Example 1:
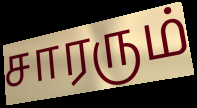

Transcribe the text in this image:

சாரரும்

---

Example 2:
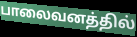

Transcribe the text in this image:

பாலைவனத்தில்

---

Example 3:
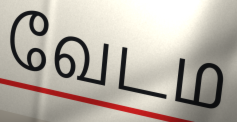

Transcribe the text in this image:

வேடம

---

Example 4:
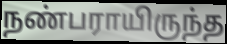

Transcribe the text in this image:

நண்பராயிருந்த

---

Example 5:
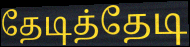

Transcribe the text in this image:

தேடித்தேடி